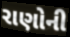
રાણોની